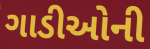
ગાડીઓની